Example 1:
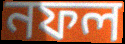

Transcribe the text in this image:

নফল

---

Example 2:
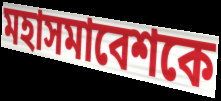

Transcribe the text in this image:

মহাসমাবেশকে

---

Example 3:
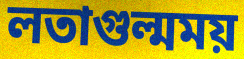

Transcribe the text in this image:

লতাগুল্মময়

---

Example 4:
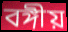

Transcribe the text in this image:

বঙ্গীয়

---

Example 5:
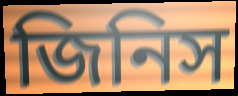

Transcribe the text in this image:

জিনিস